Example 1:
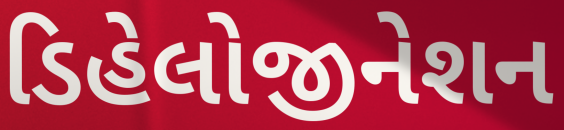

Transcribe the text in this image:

ડિહેલોજીનેશન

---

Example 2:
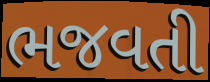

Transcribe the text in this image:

ભજવતી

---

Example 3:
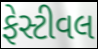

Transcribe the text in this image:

ફેસ્ટીવલ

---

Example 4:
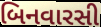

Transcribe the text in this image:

બિનવારસી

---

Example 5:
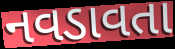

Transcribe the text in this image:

નવડાવતા